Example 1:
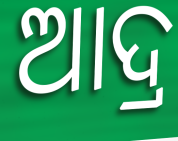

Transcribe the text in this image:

ଆଦ୍ର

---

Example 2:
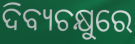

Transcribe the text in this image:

ଦିବ୍ୟଚକ୍ଷୁରେ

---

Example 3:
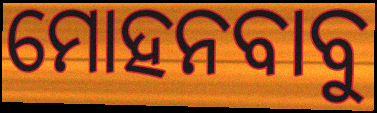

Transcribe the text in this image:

ମୋହନବାବୁ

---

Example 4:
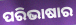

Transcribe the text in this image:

ପରିଭାଷାର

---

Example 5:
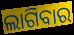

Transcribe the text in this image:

ଲାଗିବାର